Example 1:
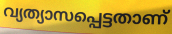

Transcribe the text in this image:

വ്യത്യാസപ്പെട്ടതാണ്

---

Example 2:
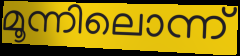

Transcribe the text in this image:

മൂന്നിലൊന്ന്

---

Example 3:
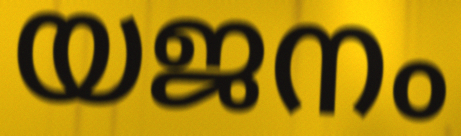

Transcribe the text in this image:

യജനം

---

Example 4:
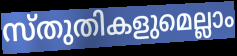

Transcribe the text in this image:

സ്തുതികളുമെല്ലാം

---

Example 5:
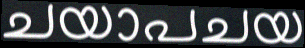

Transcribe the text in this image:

ചയാപചയ